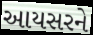
આયસરને